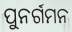
ପୁନର୍ଗମନ